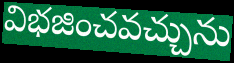
విభజించవచ్చును